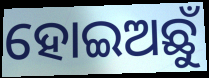
ହୋଇଅଛୁଁ